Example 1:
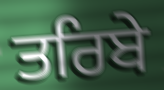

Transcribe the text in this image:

ਤਰਿਬੇ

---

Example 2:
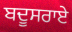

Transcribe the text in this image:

ਬਦੂਸਰਾਏ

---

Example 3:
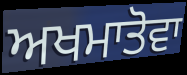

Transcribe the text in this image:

ਅਖਮਾਤੋਵਾ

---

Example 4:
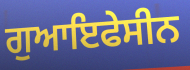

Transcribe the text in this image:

ਗੁਆਇਫੇਸੀਨ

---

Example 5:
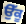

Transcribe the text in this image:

ਉੱਕੂ